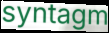
syntagm